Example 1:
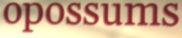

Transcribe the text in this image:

opossums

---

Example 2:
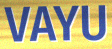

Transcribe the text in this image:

VAYU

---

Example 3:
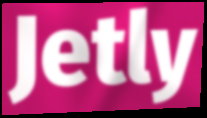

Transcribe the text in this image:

Jetly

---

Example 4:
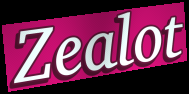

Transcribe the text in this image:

Zealot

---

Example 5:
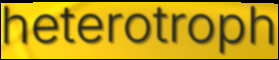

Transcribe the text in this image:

heterotroph